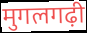
मुगलगढ़ी